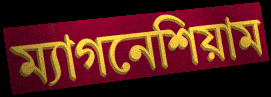
ম্যাগনেশিয়াম